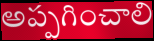
అప్పగించాలి